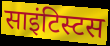
साइंटिस्टस